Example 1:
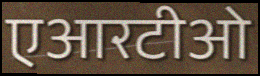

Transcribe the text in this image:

एआरटीओ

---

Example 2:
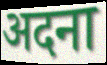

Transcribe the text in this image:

अदना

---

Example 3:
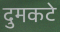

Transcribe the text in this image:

दुमकटे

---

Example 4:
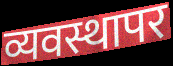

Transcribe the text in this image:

व्यवस्थापर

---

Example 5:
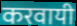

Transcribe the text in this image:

करवायी